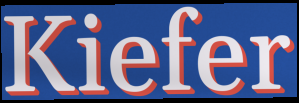
Kiefer